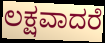
ಲಕ್ಷವಾದರೆ